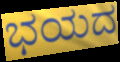
ಭಯದ